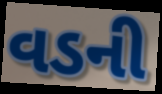
વડની